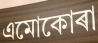
এমোকোৰা